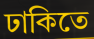
ঢাকিতে